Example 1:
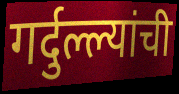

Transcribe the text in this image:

गर्दुल्ल्यांची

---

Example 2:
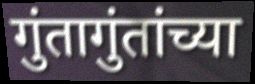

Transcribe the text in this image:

गुंतागुंतांच्या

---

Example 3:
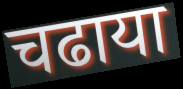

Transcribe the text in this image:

चढाया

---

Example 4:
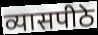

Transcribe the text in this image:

व्यासपीठे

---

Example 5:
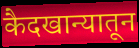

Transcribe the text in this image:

कैदखान्यातून